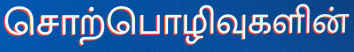
சொற்பொழிவுகளின்